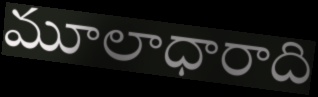
మూలాధారాది